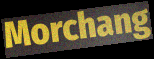
Morchang